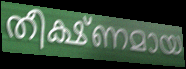
തീക്ഷ്ണമായ